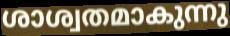
ശാശ്വതമാകുന്നു